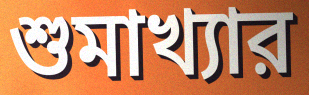
শুমাখ্যার